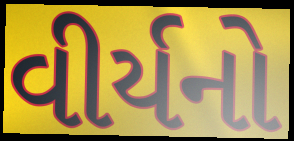
વીર્યનો